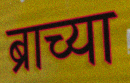
ब्राच्या